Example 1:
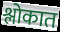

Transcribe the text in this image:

श्लोकात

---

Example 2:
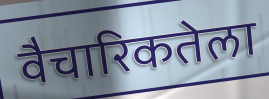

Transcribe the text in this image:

वैचारिकतेला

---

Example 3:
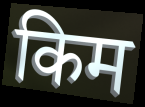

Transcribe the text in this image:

किम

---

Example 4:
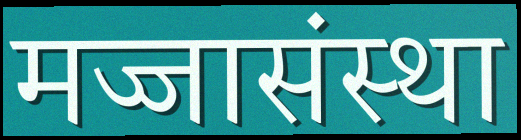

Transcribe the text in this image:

मज्जासंस्था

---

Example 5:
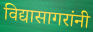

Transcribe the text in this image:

विद्यासागरांनी